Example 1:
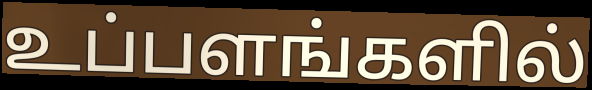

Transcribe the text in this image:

உப்பளங்களில்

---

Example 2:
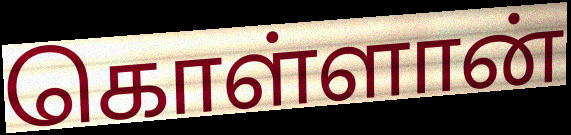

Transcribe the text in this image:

கொள்ளான்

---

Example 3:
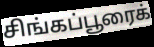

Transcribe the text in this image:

சிங்கப்பூரைக்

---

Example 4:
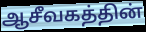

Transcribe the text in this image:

ஆசீவகத்தின்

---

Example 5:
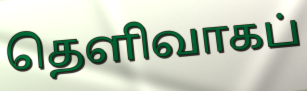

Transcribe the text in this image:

தெளிவாகப்